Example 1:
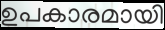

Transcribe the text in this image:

ഉപകാരമായി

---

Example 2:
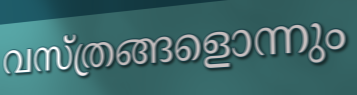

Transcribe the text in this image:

വസ്ത്രങ്ങളൊന്നും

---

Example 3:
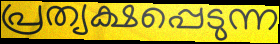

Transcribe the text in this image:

പ്രത്യക്ഷപ്പെടുന്ന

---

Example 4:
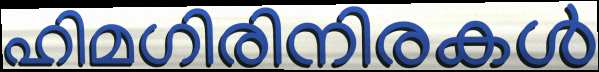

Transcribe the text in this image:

ഹിമഗിരിനിരകൾ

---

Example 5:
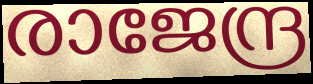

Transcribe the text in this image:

രാജേന്ദ്ര